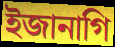
ইজানাগি